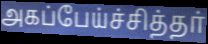
அகப்பேய்ச்சித்தர்